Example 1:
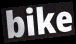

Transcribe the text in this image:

bike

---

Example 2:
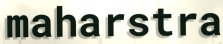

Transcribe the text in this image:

maharstra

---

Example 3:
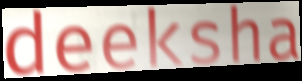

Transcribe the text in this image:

deeksha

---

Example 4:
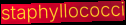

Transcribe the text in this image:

staphyllococci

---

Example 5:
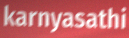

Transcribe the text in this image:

karnyasathi